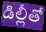
డిల్లీతో